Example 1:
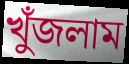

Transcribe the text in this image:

খুঁজলাম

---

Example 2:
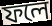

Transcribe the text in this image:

ফলে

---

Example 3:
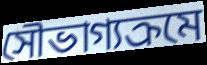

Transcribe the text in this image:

সৌভাগ্যক্রমে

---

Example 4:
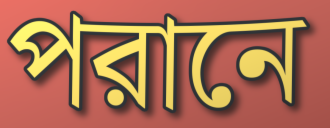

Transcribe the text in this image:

পরানে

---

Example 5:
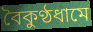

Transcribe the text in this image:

বৈকুণ্ঠধামে